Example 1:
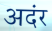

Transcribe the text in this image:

अदंर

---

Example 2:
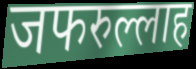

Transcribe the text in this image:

जफरुल्लाह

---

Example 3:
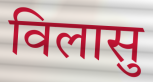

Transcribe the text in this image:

विलासु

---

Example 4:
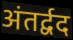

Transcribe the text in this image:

अंतर्द्वद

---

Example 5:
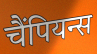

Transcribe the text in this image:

चैंपियन्स